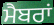
ਮੈਬਰਾਂ